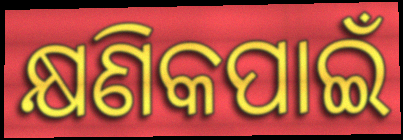
କ୍ଷଣିକପାଇଁ